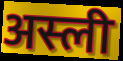
अस्ली